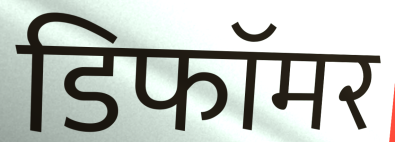
डिफॉमर